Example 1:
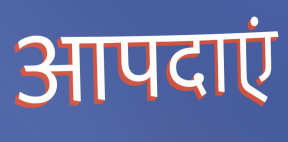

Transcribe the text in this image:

आपदाएं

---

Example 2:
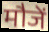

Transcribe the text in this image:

मौजें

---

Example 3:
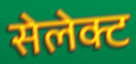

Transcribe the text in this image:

सेलेक्ट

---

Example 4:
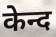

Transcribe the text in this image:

केन्द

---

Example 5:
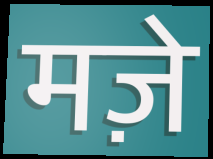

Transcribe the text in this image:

मज़े